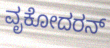
ವೃಕೋದರನ್